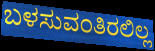
ಬಳಸುವಂತಿರಲಿಲ್ಲ